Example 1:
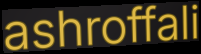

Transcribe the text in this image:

ashroffali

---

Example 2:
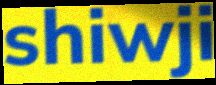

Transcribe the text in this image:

shiwji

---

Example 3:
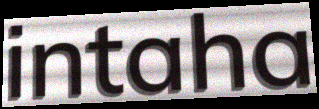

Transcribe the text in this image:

intaha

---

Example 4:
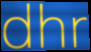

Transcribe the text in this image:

dhr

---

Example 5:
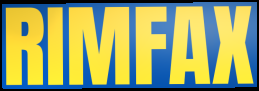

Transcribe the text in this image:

RIMFAX